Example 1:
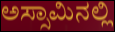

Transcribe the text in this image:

ಅಸ್ಸಾಮಿನಲ್ಲಿ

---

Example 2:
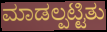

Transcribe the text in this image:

ಮಾಡಲ್ಪಟ್ಟಿತು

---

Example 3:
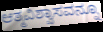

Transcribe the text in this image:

ಆತ್ಮವಿಶ್ವಾಸವನ್ನೂ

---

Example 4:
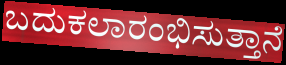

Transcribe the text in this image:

ಬದುಕಲಾರಂಭಿಸುತ್ತಾನೆ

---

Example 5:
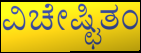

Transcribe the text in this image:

ವಿಚೇಷ್ಟಿತಂ